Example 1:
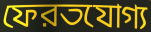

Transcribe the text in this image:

ফেরতযোগ্য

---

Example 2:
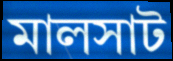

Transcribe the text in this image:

মালসাট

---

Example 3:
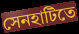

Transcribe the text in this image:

সেনহাটিতে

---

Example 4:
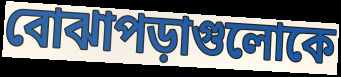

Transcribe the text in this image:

বোঝাপড়াগুলোকে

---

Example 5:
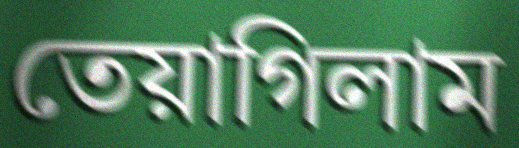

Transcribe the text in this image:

তেয়াগিলাম